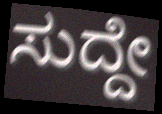
ಸುದ್ದೇ